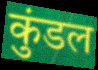
कुंडल